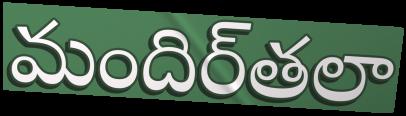
మందిర్‌తలా